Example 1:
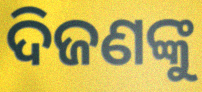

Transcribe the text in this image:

ଦିଜଣଙ୍କୁ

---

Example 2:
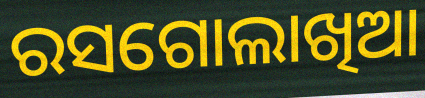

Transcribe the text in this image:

ରସଗୋଲାଖିଆ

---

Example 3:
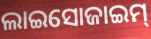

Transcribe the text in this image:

ଲାଇସୋଜାଇମ୍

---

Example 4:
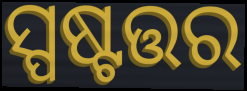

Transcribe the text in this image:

ସ୍ପଷ୍ଟତ୍ତର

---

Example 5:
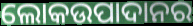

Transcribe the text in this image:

ଲୋକଉପାଦାନର